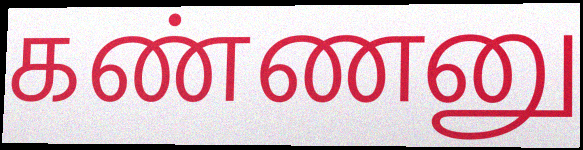
கண்ணனு